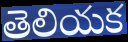
తెలియక